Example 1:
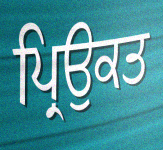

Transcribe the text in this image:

ਪ੍ਰਿਉਕਤ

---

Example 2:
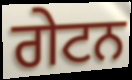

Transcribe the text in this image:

ਗੇਟਨ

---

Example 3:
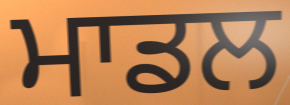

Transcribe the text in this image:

ਮਾਡਲ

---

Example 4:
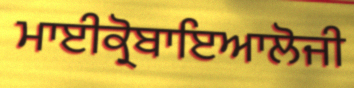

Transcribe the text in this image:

ਮਾਈਕ੍ਰੋਬਾਇਆਲੋਜੀ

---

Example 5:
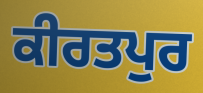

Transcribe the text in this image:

ਕੀਰਤਪੁਰ